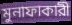
মুনাফাকারী